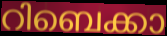
റിബെക്കാ